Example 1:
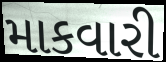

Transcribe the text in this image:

માકવારી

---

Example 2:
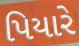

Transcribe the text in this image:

પિયારે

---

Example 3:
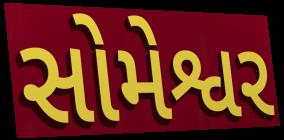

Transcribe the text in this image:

સોમેશ્વર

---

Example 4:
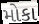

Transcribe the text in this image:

મોકા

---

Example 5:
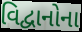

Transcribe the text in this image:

વિદ્વાનોના